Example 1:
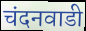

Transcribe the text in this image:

चंदनवाडी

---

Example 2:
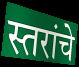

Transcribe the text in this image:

स्तरांचे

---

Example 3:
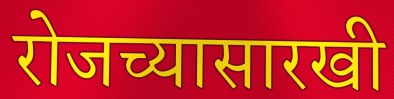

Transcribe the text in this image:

रोजच्यासारखी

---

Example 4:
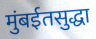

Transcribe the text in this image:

मुंबईतसुद्धा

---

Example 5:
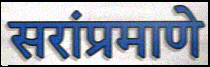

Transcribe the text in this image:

सरांप्रमाणे